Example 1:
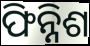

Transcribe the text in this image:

ଫିନ୍ନିଶ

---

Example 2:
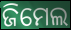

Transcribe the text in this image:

ଜିମେଲ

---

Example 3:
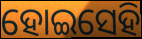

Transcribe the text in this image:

ହୋଇସେହି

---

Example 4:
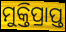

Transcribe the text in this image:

ମୁକ୍ତିପ୍ରାପ୍ତ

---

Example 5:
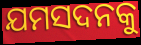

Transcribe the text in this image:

ଯମସଦନକୁ